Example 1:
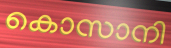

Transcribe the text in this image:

കൊസാനി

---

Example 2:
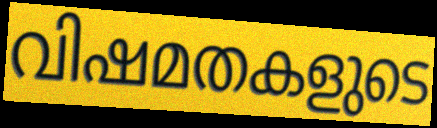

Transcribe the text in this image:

വിഷമതകളുടെ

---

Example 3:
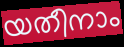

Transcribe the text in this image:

യതീനാം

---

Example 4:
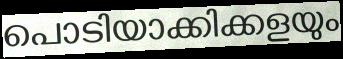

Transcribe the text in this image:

പൊടിയാക്കിക്കളയും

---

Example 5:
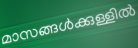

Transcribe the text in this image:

മാസങ്ങൾക്കുള്ളിൽ